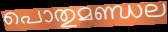
പൊതുമണ്ഡല